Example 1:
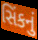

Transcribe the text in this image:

સિંકનું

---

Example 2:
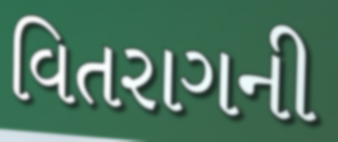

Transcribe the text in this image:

વિતરાગની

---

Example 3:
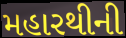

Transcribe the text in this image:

મહારથીની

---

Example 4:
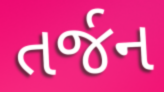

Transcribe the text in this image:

તર્જન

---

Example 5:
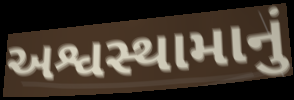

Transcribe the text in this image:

અશ્વસ્થામાનું